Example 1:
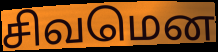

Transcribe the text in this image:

சிவமென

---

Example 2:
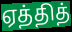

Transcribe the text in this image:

ஏத்தித்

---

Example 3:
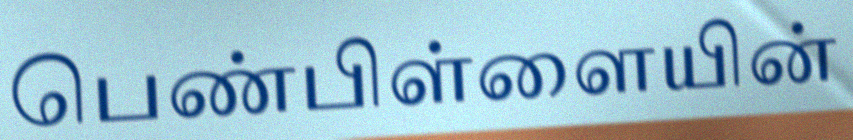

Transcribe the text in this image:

பெண்பிள்ளையின்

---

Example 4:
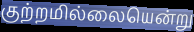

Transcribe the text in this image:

குற்றமில்லையென்று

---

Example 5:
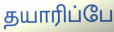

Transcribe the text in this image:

தயாரிப்பே